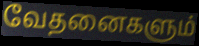
வேதனைகளும்